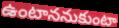
ఉంటాననుకుంటా